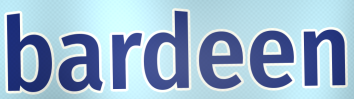
bardeen